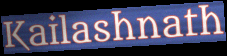
Kailashnath